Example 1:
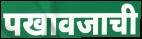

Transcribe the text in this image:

पखावजाची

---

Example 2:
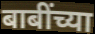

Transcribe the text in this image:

बाबींच्या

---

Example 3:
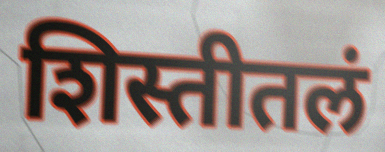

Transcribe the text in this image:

शिस्तीतलं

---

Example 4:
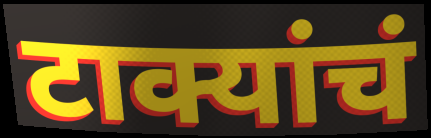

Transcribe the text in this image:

टाक्यांचं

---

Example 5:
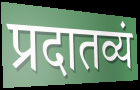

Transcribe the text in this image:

प्रदातव्यं